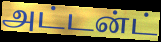
அட்டன்ட்